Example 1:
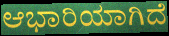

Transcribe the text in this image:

ಆಭಾರಿಯಾಗಿದೆ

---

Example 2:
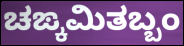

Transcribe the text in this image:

ಚಙ್ಕಮಿತಬ್ಬಂ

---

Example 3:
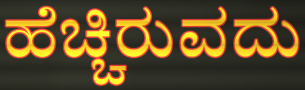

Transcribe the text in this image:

ಹೆಚ್ಚಿರುವದು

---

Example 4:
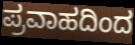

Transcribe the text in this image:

ಪ್ರವಾಹದಿಂದ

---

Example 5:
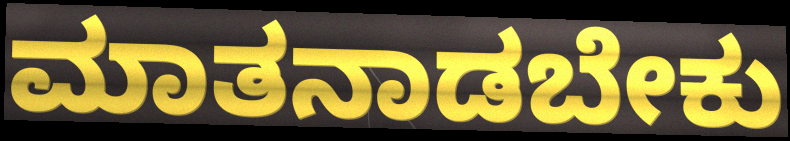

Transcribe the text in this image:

ಮಾತನಾಡಬೇಕು